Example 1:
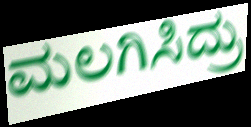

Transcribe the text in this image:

ಮಲಗಿಸಿದ್ರು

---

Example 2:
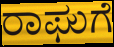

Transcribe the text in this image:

ರಾಘುಗೆ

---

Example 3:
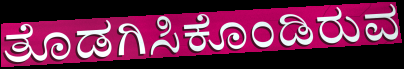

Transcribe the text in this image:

ತೊಡಗಿಸಿಕೊಂಡಿರುವ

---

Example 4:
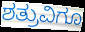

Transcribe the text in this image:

ಶತ್ರುವಿಗೂ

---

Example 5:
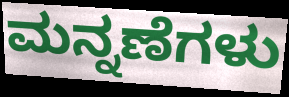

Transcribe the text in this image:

ಮನ್ನಣೆಗಳು